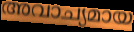
അവാച്യമായ